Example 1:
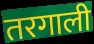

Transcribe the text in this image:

तरगाली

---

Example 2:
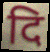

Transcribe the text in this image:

दि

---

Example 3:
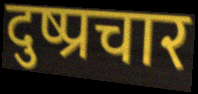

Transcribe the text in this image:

दुष्‍प्रचार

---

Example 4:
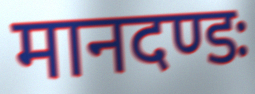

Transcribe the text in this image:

मानदण्डः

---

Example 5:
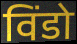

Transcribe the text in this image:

विंडो